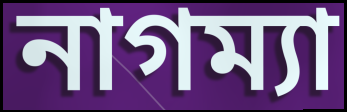
নাগম্যা